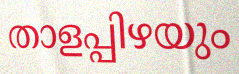
താളപ്പിഴയും